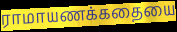
ராமாயணக்கதையை